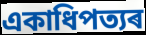
একাধিপত্যৰ